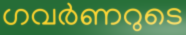
ഗവർണറുടെ